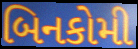
બિનકોમી